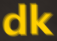
dk